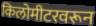
किलोमीटरवरून